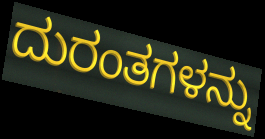
ದುರಂತಗಳನ್ನು